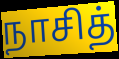
நாசித்